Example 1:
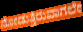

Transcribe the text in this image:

ನೋಡುತ್ತಿರುವಾಗಲೇ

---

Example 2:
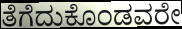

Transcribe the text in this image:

ತೆಗೆದುಕೊಂಡವರೇ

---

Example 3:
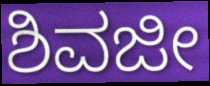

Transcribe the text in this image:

ಶಿವಜೀ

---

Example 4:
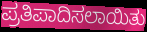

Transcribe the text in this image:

ಪ್ರತಿಪಾದಿಸಲಾಯಿತು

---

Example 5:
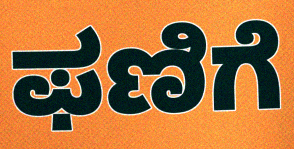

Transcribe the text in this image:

ಫಣಿಗೆ